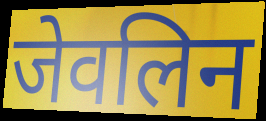
जेवलिन